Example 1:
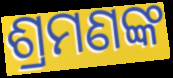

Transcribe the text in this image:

ଶ୍ରମଣଙ୍କ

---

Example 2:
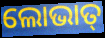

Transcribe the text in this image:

ଲୋଭାତ୍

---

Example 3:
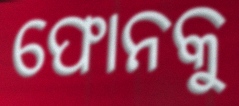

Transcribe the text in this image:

ଫୋନକୁ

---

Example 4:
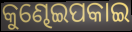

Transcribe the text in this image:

କୁଣ୍ଢେଇପକାଇ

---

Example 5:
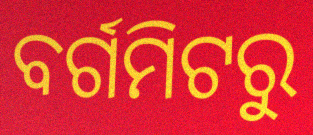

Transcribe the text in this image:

ବର୍ଗମିଟରୁ